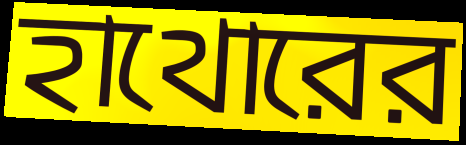
হাথোরের